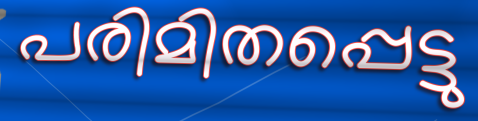
പരിമിതപ്പെട്ടു